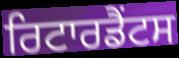
ਰਿਟਾਰਡੈਂਟਸ